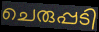
ചെരുപ്പടി